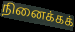
நினைக்கக்